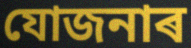
যোজনাৰ